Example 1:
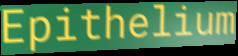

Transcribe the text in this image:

Epithelium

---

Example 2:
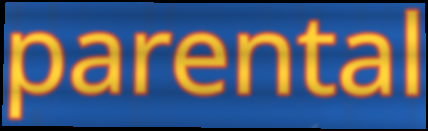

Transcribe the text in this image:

parental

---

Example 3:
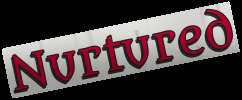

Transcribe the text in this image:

Nurtured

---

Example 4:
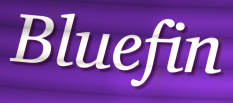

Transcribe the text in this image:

Bluefin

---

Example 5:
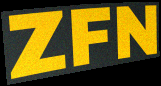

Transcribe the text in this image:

ZFN